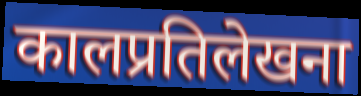
कालप्रतिलेखना